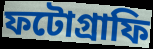
ফটোগ্রাফি